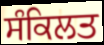
ਸੰਕਿਲਤ